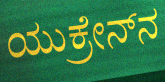
ಯುಕ್ರೇನ್‌ನ